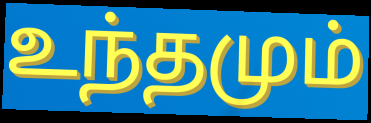
உந்தமும்